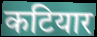
कटियार